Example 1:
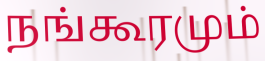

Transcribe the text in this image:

நங்கூரமும்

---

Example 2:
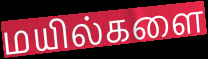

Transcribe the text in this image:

மயில்களை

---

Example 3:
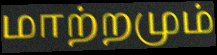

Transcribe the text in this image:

மாற்றமும்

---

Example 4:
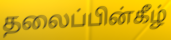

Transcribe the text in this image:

தலைப்பின்கீழ்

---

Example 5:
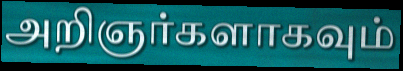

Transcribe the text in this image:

அறிஞர்களாகவும்